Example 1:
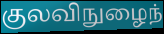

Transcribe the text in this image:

குலவிநுழைந்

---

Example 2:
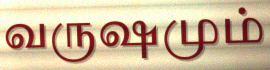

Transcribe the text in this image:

வருஷமும்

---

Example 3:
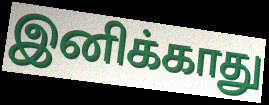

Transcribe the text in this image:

இனிக்காது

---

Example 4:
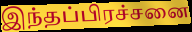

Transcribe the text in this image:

இந்தப்பிரச்சனை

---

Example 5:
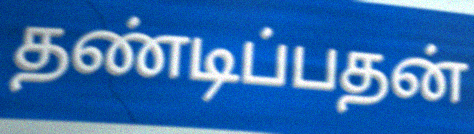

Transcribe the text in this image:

தண்டிப்பதன்